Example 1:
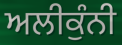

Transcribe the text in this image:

ਅਲੀਕੁੰਨੀ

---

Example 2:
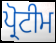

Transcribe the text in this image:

ਪ੍ਰੋਟੀਮ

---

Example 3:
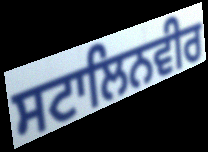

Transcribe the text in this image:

ਸਟਾਲਿਨਵੀਰ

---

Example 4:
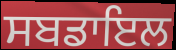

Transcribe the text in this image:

ਸਬਡਾਇਲ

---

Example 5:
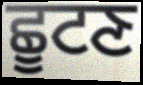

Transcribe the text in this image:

ਛੂਟਣ